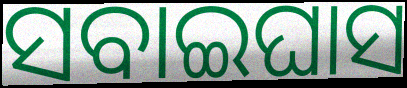
ସବାଇଘାସ